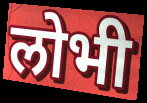
लोभी